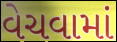
વેચવામાં